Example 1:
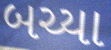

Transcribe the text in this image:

બચ્યા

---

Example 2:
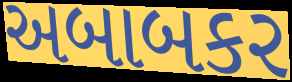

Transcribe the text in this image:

અબાબકર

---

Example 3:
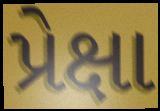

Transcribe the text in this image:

પ્રેક્ષા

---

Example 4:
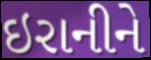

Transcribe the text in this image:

ઇરાનીને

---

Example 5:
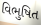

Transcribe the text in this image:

વિભુષિત